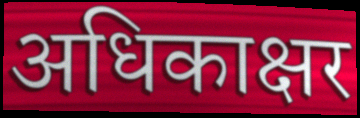
अधिकाक्षर